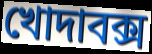
খোদাবক্স